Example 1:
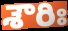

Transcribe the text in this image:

శౌరిః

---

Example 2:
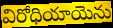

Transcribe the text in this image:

విరోధియాయెను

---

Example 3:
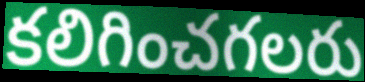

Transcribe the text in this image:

కలిగించగలరు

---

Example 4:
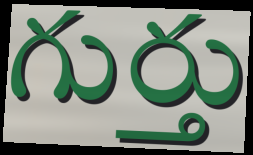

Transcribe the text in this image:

గుర్తు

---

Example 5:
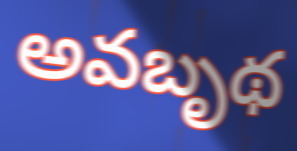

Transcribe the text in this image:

అవబృథ